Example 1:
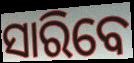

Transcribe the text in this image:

ସାରିବେ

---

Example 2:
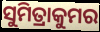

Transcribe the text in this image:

ସୁମିତ୍ରାକୁମର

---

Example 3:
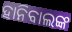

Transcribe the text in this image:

ହାନିବାଲଙ୍କ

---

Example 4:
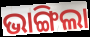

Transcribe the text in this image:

ଭାଙ୍ଗିଲା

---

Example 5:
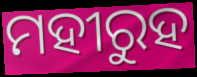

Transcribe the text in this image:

ମହୀରୁହ